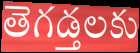
తెగడ్తలకు